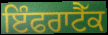
ਇੰਫਰਾਟੈੱਕ